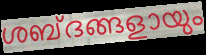
ശബ്ദങ്ങളായും